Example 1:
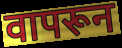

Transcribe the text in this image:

वापरून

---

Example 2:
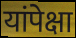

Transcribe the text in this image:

यांपेक्षा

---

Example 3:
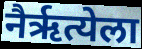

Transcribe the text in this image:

नैर्ऋत्येला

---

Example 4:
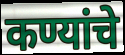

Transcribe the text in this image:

कण्यांचे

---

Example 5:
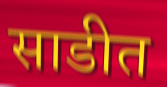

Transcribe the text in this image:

साडीत